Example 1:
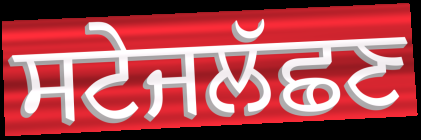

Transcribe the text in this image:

ਸਟੇਜਲੱਛਣ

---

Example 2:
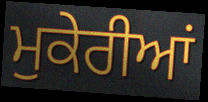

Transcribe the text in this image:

ਮੁਕੇਰੀਆਂ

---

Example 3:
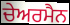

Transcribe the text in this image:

ਚੇਅਰਮੈਨ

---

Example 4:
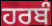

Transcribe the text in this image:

ਹਰਬੰ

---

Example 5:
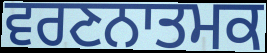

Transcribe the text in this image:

ਵਰਣਨਾਤਮਕ